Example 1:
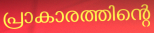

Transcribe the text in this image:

പ്രാകാരത്തിന്റെ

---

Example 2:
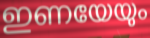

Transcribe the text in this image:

ഇണയേയും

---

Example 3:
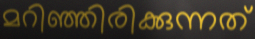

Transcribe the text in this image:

മറിഞ്ഞിരിക്കുന്നത്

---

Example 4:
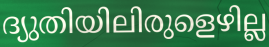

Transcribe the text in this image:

ദ്യുതിയിലിരുളെഴില്ല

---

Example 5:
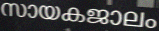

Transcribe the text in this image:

സായകജാലം